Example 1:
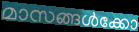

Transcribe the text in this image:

മാസങ്ങൾക്കോ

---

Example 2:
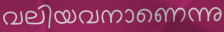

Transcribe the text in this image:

വലിയവനാണെന്നു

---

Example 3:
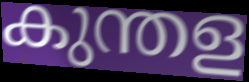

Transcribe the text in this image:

കുന്തള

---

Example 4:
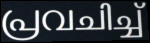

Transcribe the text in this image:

പ്രവചിച്ച്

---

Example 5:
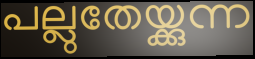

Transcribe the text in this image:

പല്ലുതേയ്ക്കുന്ന